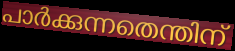
പാർക്കുന്നതെന്തിന്